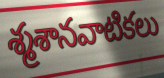
శ్మశానవాటికలు